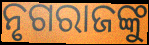
ନୃଗରାଜଙ୍କୁ